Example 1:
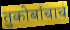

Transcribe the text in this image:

तुकोबांचाच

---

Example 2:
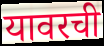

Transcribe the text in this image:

यावरची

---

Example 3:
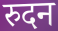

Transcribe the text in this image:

रुदन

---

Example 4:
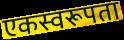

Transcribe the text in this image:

एकस्वरूपता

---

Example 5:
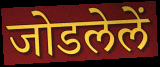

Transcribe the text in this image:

जोडलेलें